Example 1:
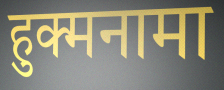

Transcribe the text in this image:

हुक्मनामा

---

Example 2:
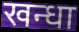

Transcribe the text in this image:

खन्धा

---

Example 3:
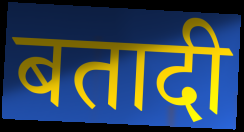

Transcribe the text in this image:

बतादी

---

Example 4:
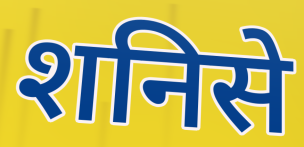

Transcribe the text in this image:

शनिसे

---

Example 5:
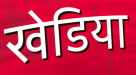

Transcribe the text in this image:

खेडिया